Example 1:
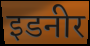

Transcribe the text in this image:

इडनीर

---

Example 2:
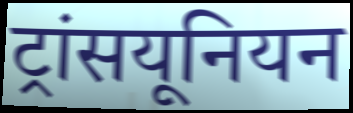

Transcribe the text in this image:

ट्रांसयूनियन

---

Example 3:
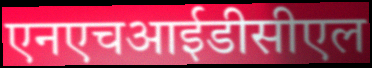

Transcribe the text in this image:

एनएचआईडीसीएल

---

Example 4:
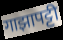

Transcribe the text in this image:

गाझापट्टी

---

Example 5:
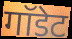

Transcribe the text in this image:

गॉडेट